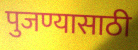
पुजण्यासाठी